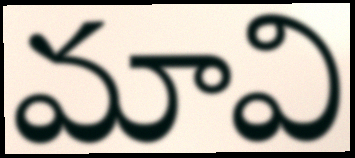
మావి